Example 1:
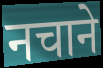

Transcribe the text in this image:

नचाने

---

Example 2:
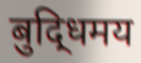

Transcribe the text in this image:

बुद्धिमय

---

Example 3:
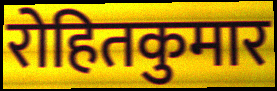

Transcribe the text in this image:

रोहितकुमार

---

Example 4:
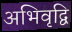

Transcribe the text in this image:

अभिवृद्वि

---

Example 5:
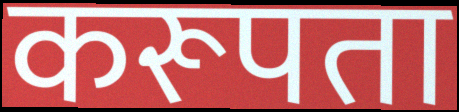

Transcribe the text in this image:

करूपता